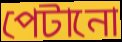
পেটানো